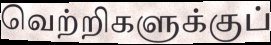
வெற்றிகளுக்குப்